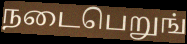
நடைபெறுங்